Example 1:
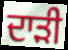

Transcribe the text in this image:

ਦਾੜੀ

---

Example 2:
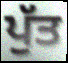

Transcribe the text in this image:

ਪੁੱਤ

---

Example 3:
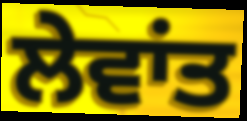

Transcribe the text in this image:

ਲੇਵਾਂਤ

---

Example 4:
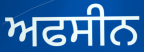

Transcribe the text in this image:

ਅਫਸੀਨ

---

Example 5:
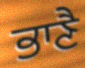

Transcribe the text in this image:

ਭਾਣੈ